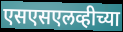
एसएसएलव्हीच्या